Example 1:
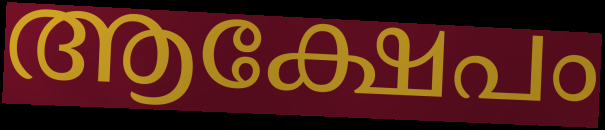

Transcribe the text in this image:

ആക്ഷേപം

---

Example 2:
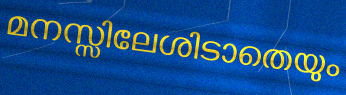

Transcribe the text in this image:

മനസ്സിലേശിടാതെയും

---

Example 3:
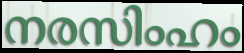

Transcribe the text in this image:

നരസിംഹം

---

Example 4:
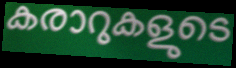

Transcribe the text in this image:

കരാറുകളുടെ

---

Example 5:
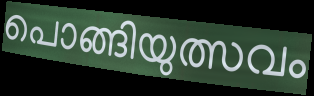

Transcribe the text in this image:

പൊങ്ങിയുത്സവം